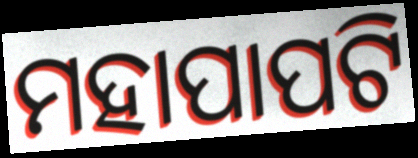
ମହାପାପଟି